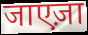
जाएज़ा